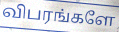
விபரங்களே